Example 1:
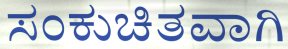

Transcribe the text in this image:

ಸಂಕುಚಿತವಾಗಿ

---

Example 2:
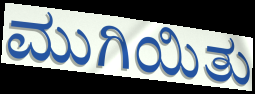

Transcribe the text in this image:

ಮುಗಿಯಿತು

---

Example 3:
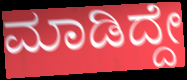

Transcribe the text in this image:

ಮಾಡಿದ್ದೇ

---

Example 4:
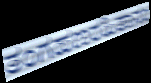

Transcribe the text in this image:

ತಂಗಹಣರಹಿತಾನಂ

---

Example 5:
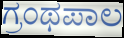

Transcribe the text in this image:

ಗ್ರಂಥಪಾಲ